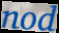
nod